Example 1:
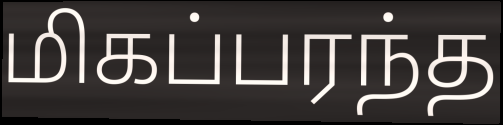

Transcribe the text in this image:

மிகப்பரந்த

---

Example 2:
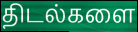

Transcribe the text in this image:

திடல்களை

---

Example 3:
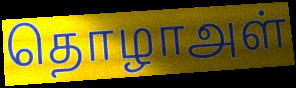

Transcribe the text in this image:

தொழாஅள்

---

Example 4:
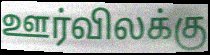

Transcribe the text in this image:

ஊர்விலக்கு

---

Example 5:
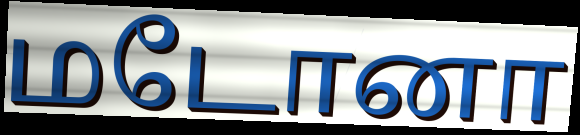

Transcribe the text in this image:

மடோனா